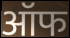
ऑफ